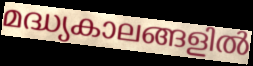
മദ്ധ്യകാലങ്ങളിൽ